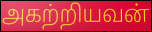
அகற்றியவன்